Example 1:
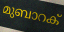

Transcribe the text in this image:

മുബാറക്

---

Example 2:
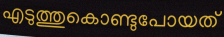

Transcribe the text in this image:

എടുത്തുകൊണ്ടുപോയത്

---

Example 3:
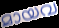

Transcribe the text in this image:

മായവ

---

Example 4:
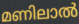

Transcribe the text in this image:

മണിലാൽ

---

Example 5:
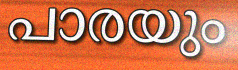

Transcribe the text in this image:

പാരയും